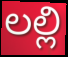
లల్లి